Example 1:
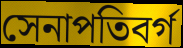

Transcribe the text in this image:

সেনাপতিবর্গ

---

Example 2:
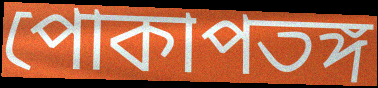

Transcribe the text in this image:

পোকাপতঙ্গ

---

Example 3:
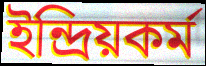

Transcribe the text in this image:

ইন্দ্রিয়কর্ম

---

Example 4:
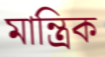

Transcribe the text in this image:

মান্ত্রিক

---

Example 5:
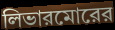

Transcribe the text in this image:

লিভারমোরের